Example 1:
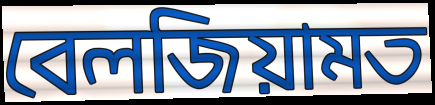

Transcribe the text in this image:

বেলজিয়ামত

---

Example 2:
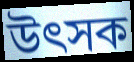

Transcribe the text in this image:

উৎসক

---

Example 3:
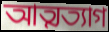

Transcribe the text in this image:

আত্মত্যাগ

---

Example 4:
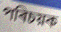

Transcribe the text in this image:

পৰিচয়ক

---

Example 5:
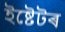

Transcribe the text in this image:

ইষ্টেটৰ